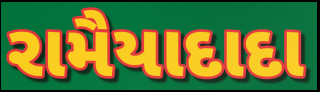
રામૈયાદાદા